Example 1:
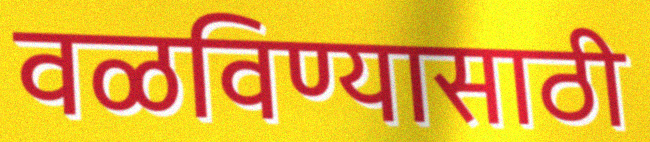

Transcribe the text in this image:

वळविण्यासाठी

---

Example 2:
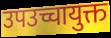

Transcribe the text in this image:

उपउच्चायुक्त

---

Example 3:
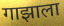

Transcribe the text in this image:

गाझाला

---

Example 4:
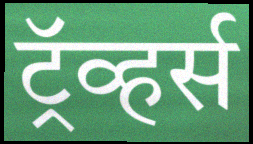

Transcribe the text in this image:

ट्रॅव्हर्स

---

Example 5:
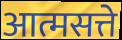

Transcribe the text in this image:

आत्मसत्ते